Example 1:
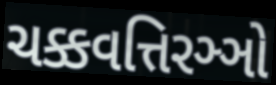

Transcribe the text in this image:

ચક્કવત્તિરઞ્ઞો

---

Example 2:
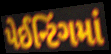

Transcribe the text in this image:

પેઈન્ટિંગમાં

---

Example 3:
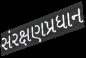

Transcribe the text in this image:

સંરક્ષણપ્રધાન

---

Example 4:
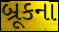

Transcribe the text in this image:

બ્રૂકના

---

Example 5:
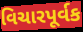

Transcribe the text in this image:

વિચારપૂર્વક